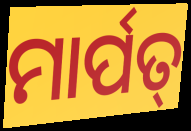
ମାର୍ପତ୍